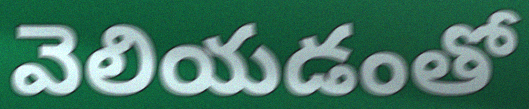
వెలియడంతో